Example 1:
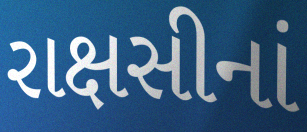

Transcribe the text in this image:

રાક્ષસીનાં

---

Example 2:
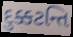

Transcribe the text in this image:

દુક્કટન્તિ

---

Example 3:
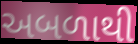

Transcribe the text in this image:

અબળાથી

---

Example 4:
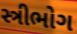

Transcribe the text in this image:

સ્ત્રીભોગ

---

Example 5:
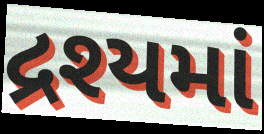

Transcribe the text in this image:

દ્રશ્યમાં